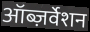
ऑब्ज़र्वेशन